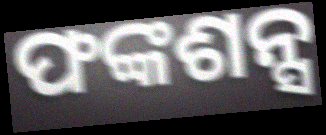
ଫଙ୍କଶନ୍ସ